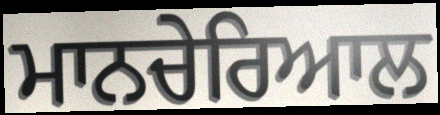
ਮਾਨਚੇਰਿਆਲ